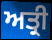
ਅਤ੍ਰੀ